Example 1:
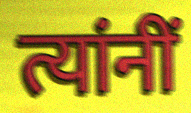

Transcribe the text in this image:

त्यांनीं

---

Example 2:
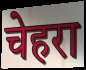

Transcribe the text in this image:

चेहरा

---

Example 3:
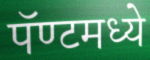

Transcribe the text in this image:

पॅण्टमध्ये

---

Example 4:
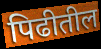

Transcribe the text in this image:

पिढीतील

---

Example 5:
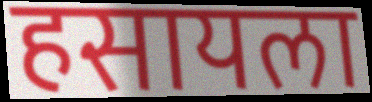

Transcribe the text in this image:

हसायला